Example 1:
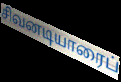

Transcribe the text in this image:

சிவனடியாரைப்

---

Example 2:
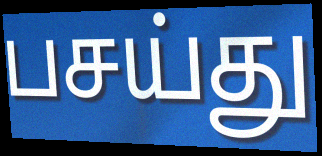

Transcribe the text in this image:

பசய்து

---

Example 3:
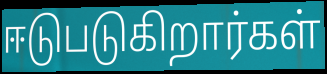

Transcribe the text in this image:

ஈடுபடுகிறார்கள்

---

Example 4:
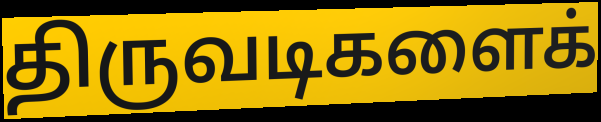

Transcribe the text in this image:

திருவடிகளைக்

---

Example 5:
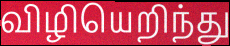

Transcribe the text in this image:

விழியெறிந்து